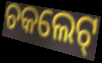
ଚକଲେଟ୍